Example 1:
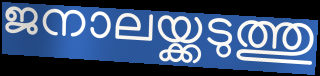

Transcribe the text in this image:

ജനാലയ്ക്കടുത്തു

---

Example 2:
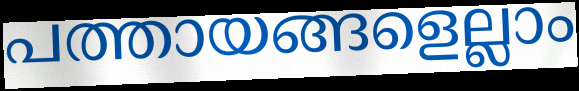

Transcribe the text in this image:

പത്തായങ്ങളെല്ലാം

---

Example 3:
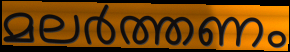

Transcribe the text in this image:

മലർത്തണം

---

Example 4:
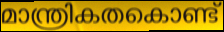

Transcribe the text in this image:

മാന്ത്രികതകൊണ്ട്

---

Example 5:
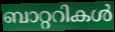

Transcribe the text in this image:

ബാറ്ററികൾ